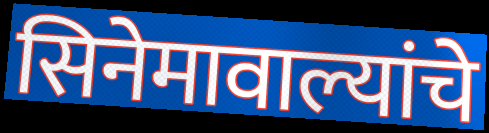
सिनेमावाल्यांचे